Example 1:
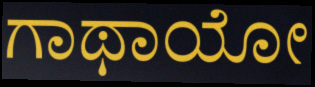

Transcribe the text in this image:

ಗಾಥಾಯೋ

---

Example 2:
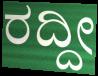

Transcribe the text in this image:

ರದ್ದೀ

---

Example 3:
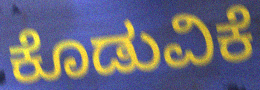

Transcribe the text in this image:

ಕೊಡುವಿಕೆ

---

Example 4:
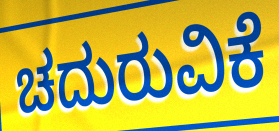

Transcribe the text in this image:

ಚದುರುವಿಕೆ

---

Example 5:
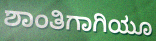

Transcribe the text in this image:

ಶಾಂತಿಗಾಗಿಯೂ